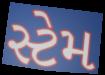
સ્ટેમ